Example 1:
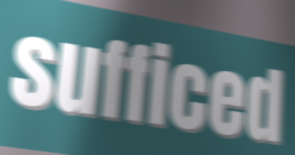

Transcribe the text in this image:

sufficed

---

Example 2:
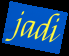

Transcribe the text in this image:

jadi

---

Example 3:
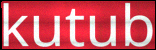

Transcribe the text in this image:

kutub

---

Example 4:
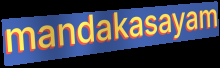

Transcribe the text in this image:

mandakasayam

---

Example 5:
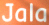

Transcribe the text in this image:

Jala